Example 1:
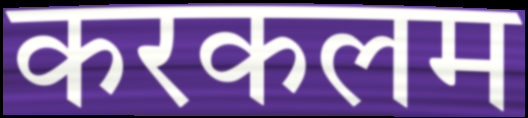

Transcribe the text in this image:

करकलम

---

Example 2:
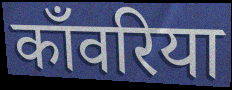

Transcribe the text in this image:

काँवरिया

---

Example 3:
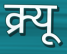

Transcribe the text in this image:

क्र्यू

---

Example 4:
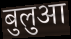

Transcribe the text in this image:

बुलुआ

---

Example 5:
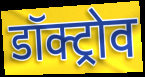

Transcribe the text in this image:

डॉक्ट्रोव